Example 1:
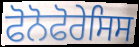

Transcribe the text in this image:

ਫੋਨੋਫੋਰੇਸਿਸ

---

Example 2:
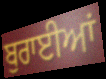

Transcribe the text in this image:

ਬੁਰਾਈਆਂ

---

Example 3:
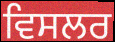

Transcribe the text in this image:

ਵਿਸਲਰ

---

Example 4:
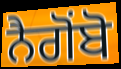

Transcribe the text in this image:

ਨੈਗੋਂਬੋ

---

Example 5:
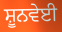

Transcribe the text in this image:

ਸ਼ੂਨਵੇਈ